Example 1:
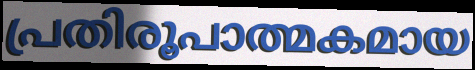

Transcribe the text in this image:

പ്രതിരൂപാത്മകമായ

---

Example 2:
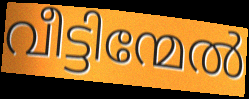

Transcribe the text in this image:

വീട്ടിന്മേൽ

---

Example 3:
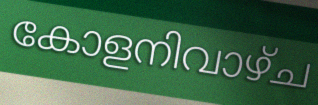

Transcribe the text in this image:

കോളനിവാഴ്ച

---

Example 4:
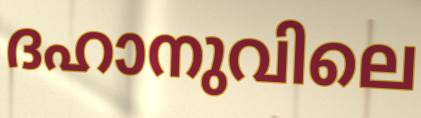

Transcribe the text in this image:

ദഹാനുവിലെ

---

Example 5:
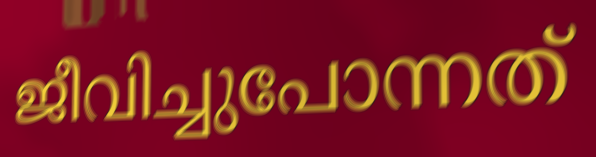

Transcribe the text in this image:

ജീവിച്ചുപോന്നത്